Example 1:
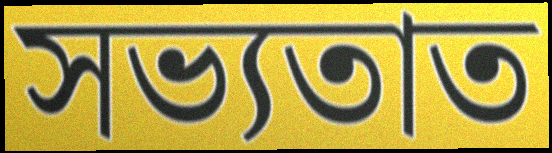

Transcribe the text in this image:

সভ্যতাত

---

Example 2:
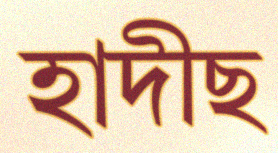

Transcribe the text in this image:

হাদীছ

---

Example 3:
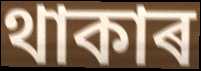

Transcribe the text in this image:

থাকাৰ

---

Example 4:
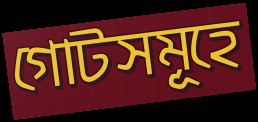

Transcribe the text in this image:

গোটসমূহে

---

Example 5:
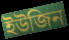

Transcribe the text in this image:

ইউজিন